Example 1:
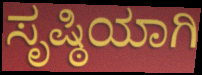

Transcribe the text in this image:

ಸೃಷ್ಠಿಯಾಗಿ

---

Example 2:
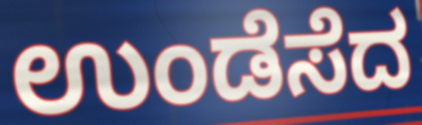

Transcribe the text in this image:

ಉಂಡೆಸೆದ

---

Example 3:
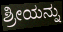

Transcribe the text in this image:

ಶ್ರೀಯನ್ನು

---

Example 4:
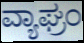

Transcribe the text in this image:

ವ್ಯಾಘ್ರಂ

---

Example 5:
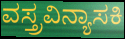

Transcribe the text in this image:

ವಸ್ತ್ರವಿನ್ಯಾಸಕಿ